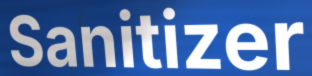
Sanitizer